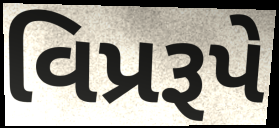
વિપ્રરૂપે